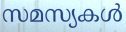
സമസ്യകൾ